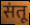
संतू